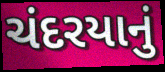
ચંદરયાનું